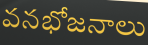
వనభోజనాలు